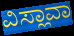
ವಿಸ್ಲಾವಾ